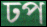
ঢপ